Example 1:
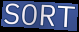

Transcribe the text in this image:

SORT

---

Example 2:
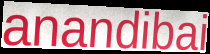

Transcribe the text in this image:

anandibai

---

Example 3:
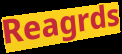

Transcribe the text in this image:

Reagrds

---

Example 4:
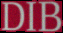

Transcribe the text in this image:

DIB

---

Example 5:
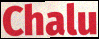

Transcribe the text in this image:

Chalu